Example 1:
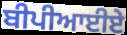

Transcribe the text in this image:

ਬੀਪੀਆਈਏ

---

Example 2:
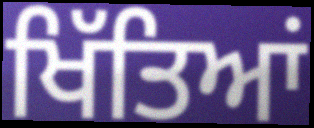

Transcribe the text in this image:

ਖਿੱਤਿਆਂ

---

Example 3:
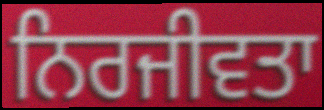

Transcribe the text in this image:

ਨਿਰਜੀਵਤਾ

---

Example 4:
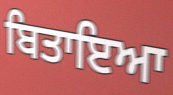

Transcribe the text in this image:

ਬਿਤਾਇਆ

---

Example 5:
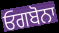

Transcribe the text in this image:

ਓਗਬੋਨਾ